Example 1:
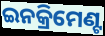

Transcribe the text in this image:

ଇନକ୍ରିମେଣ୍ଟ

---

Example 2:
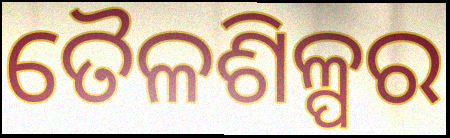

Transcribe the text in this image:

ତୈଳଶିଳ୍ପର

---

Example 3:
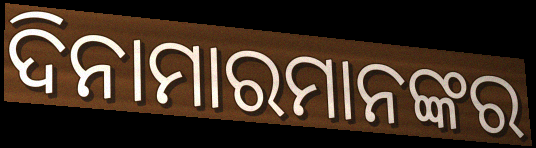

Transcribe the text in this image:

ଦିନାମାରମାନଙ୍କର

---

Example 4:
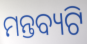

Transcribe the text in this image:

ମନ୍ତବ୍ୟଟି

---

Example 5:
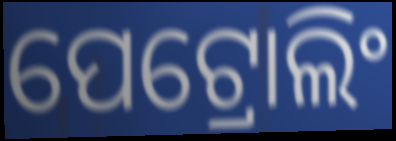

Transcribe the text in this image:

ପେଟ୍ରୋଲିଂ